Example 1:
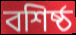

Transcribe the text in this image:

বশিষ্ঠ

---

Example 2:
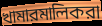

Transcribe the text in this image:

খামারমালিকরা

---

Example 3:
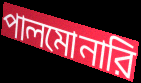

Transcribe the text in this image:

পালমোনারি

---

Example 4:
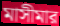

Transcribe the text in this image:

মাসীমার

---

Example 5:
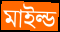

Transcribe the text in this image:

মাইল্ড